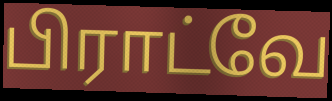
பிராட்வே